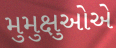
મુમુક્ષુઓએ